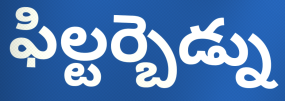
ఫిల్టర్బెడ్ను